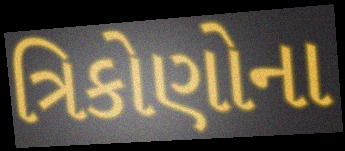
ત્રિકોણોના